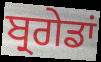
ਬ੍ਰਗੇਡਾਂ